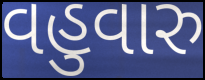
વહુવારુ